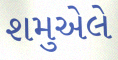
શમુએલે